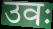
उवः